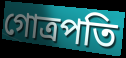
গোত্রপতি